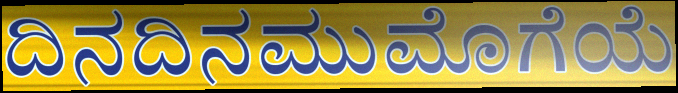
ದಿನದಿನಮುಮೊಗೆಯೆ